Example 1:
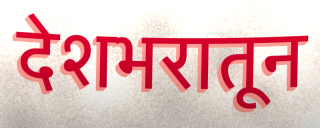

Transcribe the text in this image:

देशभरातून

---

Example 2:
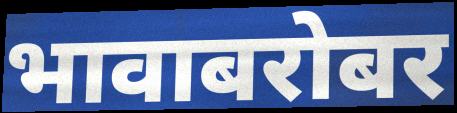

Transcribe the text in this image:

भावाबरोबर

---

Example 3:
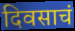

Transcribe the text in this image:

दिवसाचं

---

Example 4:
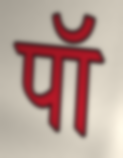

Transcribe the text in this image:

पॉ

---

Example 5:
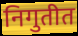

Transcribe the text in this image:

निगुतीत